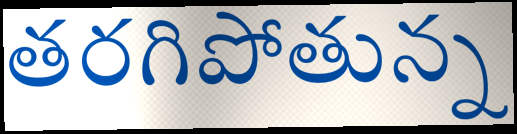
తరగిపోతున్న